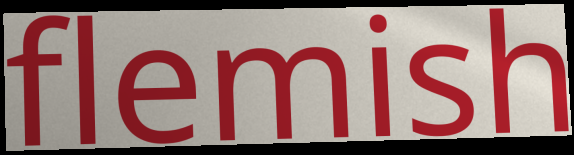
flemish